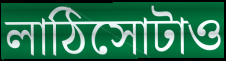
লাঠিসোটাও